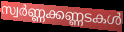
സ്വർണ്ണക്കണ്ണടകൾ